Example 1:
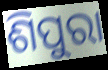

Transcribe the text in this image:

ଶିପୁରା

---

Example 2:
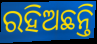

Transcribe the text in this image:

ରହିଅଛନ୍ତି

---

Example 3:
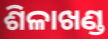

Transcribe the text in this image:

ଶିଳାଖଣ୍ଡ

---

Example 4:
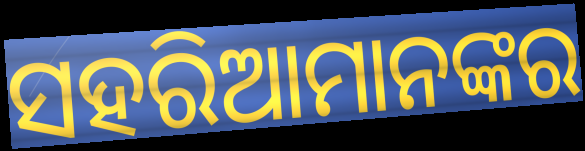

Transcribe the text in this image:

ସହରିଆମାନଙ୍କର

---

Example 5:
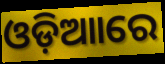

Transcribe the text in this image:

ଓଡ଼ିଆାରେ